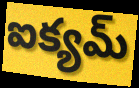
ఐక్యమ్